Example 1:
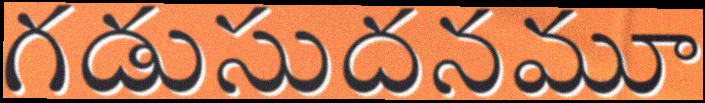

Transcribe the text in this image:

గడుసుదనమూ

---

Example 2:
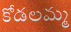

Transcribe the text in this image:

కోడలమ్మ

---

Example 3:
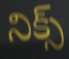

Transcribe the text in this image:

నిక్స్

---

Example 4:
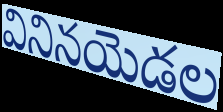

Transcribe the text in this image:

వినినయెడల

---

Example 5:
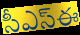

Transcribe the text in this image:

సీఎస్ఈ